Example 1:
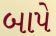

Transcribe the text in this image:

બાપે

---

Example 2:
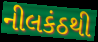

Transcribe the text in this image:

નીલકંઠથી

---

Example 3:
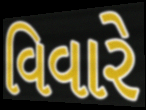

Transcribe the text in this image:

વિવારે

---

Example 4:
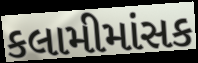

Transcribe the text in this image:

કલામીમાંસક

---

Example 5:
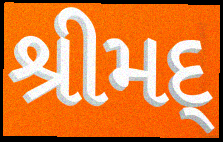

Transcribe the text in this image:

શ્રીમદ્‍